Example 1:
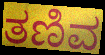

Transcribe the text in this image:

ತಣಿವ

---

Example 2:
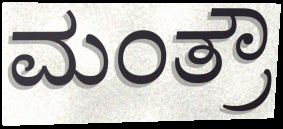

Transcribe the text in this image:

ಮಂತ್ರೌ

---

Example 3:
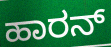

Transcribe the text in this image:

ಹಾರನ್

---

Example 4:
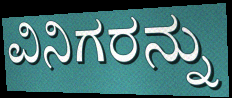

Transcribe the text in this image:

ವಿನಿಗರನ್ನು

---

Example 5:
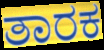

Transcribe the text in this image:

ತಾರಕ